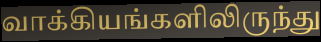
வாக்கியங்களிலிருந்து